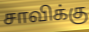
சாவிக்கு